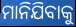
ମାନିଯିବାକୁ